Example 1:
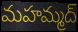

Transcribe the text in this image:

మహమ్మద్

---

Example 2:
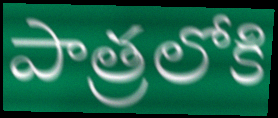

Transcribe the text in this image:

పాత్రలోకి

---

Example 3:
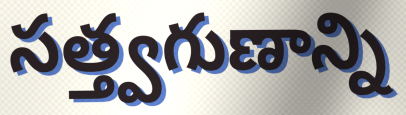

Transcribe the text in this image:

సత్త్వగుణాన్ని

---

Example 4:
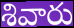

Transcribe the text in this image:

శివారు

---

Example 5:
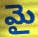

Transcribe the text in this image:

మై